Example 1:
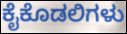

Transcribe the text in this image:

ಕೈಕೊಡಲಿಗಳು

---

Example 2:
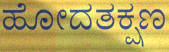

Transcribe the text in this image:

ಹೋದತಕ್ಷಣ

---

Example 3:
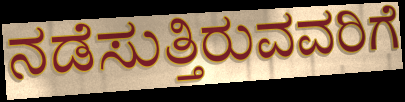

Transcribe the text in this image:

ನಡೆಸುತ್ತಿರುವವರಿಗೆ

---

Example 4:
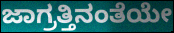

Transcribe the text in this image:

ಜಾಗ್ರತ್ತಿನಂತೆಯೇ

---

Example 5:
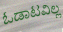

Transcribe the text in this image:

ಓಡಾಟವಿಲ್ಲ